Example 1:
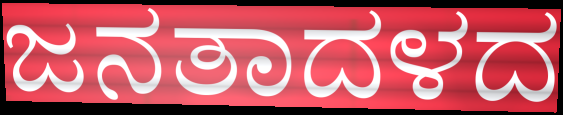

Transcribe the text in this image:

ಜನತಾದಳದ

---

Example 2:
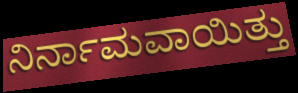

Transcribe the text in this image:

ನಿರ್ನಾಮವಾಯಿತ್ತು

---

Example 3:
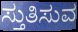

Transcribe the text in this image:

ಸ್ತುತಿಸುವ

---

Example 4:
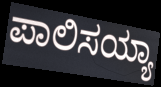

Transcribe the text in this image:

ಪಾಲಿಸಯ್ಯಾ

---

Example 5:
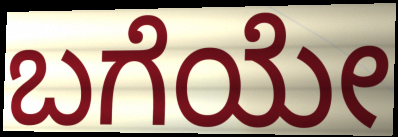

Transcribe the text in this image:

ಬಗೆಯೇ